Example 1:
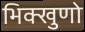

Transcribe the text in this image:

भिक्खुणो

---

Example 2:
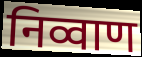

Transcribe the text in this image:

निव्वाण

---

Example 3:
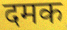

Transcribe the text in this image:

दमक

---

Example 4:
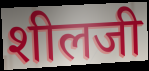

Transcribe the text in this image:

शीलजी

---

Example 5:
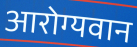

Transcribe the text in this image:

आरोग्यवान